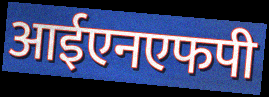
आईएनएफपी